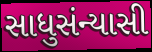
સાધુસંન્યાસી